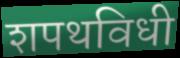
शपथविधी